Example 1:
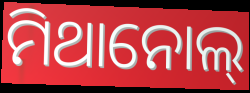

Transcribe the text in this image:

ମିଥାନୋଲ୍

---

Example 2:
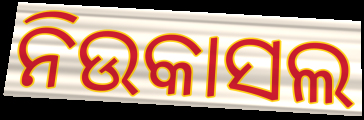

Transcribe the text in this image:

ନିଉକାସଲ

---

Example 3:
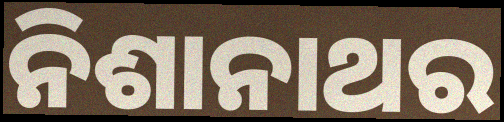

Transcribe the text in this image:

ନିଶାନାଥର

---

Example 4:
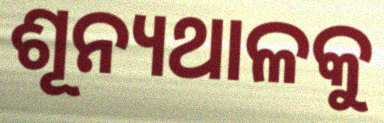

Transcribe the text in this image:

ଶୂନ୍ୟଥାଳକୁ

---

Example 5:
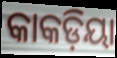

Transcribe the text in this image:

କାକଡ଼ିୟା